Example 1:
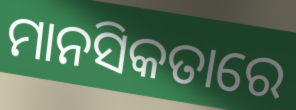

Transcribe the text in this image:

ମାନସିକତାରେ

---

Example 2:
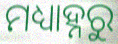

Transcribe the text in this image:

ମଧ୍ୟାହ୍ନରୁ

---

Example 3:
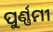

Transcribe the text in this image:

ପୁର୍ଣ୍ଣମୀ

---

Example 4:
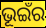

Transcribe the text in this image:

ଭୂଇଁର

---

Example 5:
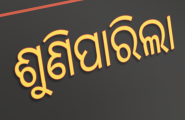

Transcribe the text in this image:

ଶୁଣିପାରିଲା